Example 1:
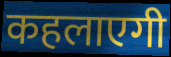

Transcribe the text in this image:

कहलाएगी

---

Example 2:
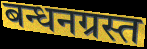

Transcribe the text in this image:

बन्धनग्रस्त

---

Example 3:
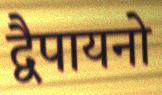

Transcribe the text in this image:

द्वैपायनो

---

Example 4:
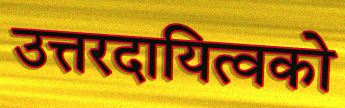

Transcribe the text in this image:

उत्तरदायित्वको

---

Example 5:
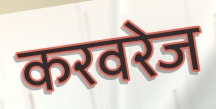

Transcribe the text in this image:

करवरेज